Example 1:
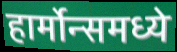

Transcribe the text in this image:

हार्मोन्समध्ये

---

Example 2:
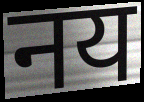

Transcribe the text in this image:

नय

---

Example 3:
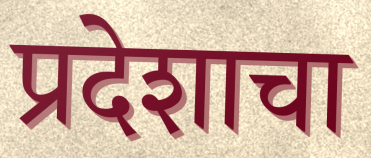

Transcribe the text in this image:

प्रदेशाचा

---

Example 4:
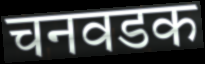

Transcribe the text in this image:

चनवडक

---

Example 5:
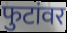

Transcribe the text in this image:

फुटांवर